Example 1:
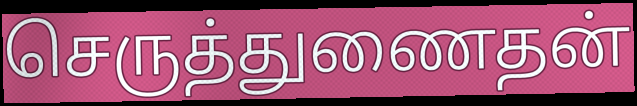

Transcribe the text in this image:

செருத்துணைதன்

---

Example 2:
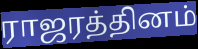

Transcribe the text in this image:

ராஜரத்தினம்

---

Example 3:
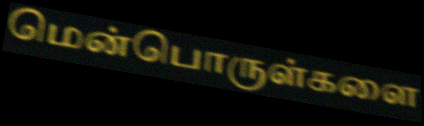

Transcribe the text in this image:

மென்பொருள்களை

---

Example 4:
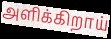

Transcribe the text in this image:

அளிக்கிறாய்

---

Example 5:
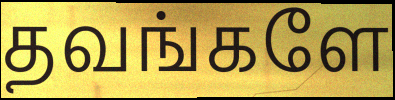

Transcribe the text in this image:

தவங்களே